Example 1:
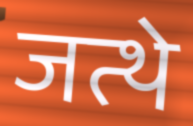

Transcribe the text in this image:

जत्थे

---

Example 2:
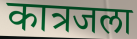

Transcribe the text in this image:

कात्रजला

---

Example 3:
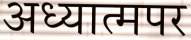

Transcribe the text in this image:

अध्यात्मपर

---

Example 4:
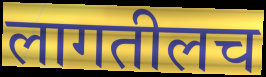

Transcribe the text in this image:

लागतीलच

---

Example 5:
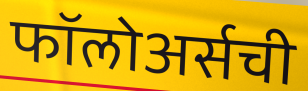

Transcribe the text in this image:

फॉलोअर्सची